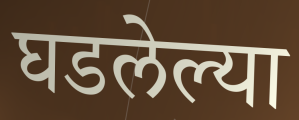
घडलेल्या